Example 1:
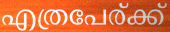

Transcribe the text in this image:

എത്രപേര്ക്ക്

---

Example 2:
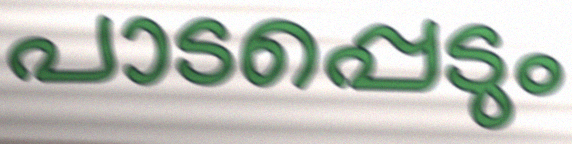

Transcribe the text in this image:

പാടപ്പെടും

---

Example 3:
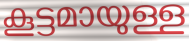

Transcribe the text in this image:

കൂട്ടമായുള്ള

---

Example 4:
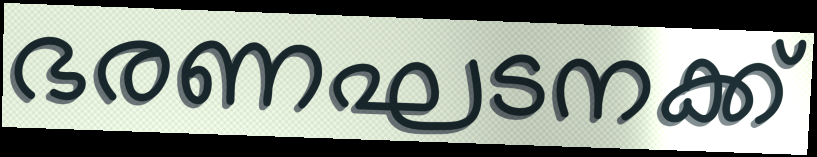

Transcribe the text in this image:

ഭരണഘടനക്ക്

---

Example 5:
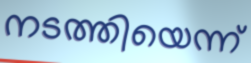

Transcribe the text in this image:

നടത്തിയെന്ന്